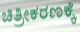
ಚಿತ್ರೀಕರಣಕ್ಕೆ